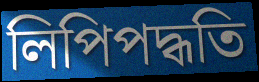
লিপিপদ্ধতি